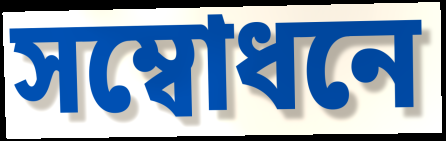
সম্বোধনে